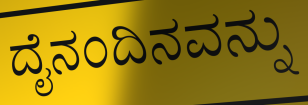
ದೈನಂದಿನವನ್ನು